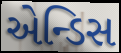
એન્ડિસ